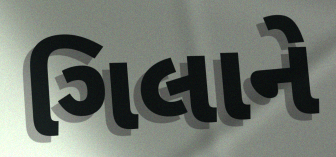
ગિલાને